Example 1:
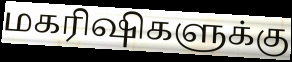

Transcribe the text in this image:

மகரிஷிகளுக்கு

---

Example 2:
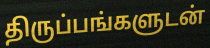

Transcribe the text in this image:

திருப்பங்களுடன்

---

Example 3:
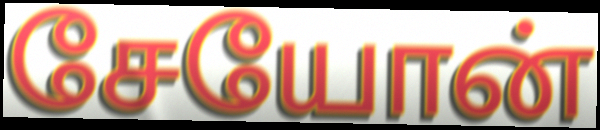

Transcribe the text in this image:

சேயோன்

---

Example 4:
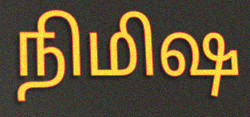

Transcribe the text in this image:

நிமிஷ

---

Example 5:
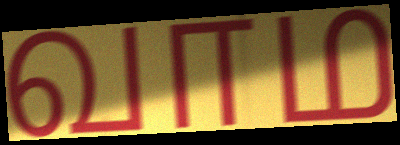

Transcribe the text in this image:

வாம